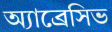
অ্যাব্রেসিভ